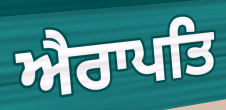
ਐਰਾਪਤਿ